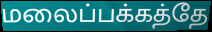
மலைப்பக்கத்தே